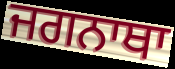
ਜਗਨਾਥਾ